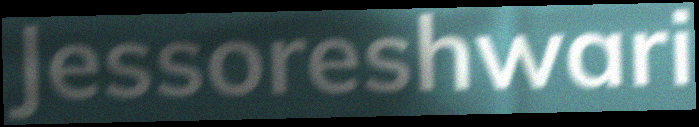
Jessoreshwari